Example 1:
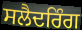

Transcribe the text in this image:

ਸਲੈਦਰਿੰਗ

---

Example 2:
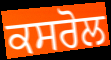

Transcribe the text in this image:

ਕਸਰੋਲ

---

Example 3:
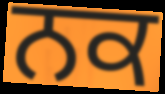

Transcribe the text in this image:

ਨਕ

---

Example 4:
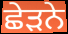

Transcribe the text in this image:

ਛੇੜਨੇ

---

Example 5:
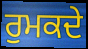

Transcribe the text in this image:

ਰੁਮਕਦੇ